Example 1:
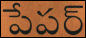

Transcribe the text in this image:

పేపర్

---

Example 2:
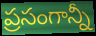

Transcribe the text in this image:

ప్రసంగాన్నీ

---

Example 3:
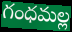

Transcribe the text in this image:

గంధమల్ల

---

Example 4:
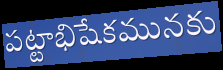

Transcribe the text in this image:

పట్టాభిషేకమునకు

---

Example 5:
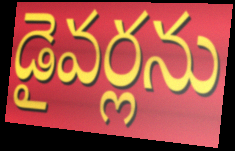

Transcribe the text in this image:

డైవర్లను